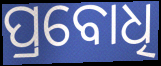
ପ୍ରବୋଧି